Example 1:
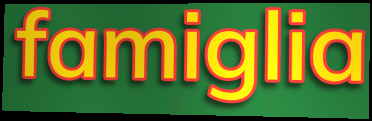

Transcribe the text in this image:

famiglia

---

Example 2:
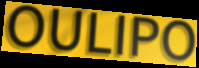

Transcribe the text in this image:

OULIPO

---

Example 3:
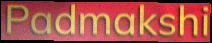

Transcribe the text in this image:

Padmakshi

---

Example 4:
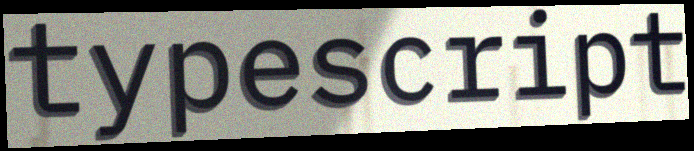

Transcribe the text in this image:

typescript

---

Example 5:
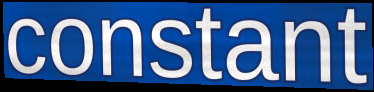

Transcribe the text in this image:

constant